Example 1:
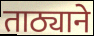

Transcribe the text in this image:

ताठ्याने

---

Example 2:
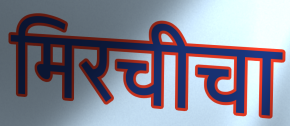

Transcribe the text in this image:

मिरचीचा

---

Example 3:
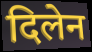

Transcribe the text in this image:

दिलेन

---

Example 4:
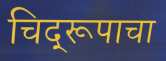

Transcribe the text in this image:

चिद्‌रूपाचा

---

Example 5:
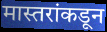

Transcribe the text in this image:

मास्तरांकडून